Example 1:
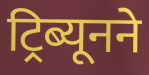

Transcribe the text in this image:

ट्रिब्यूनने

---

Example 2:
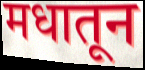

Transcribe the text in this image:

मधातून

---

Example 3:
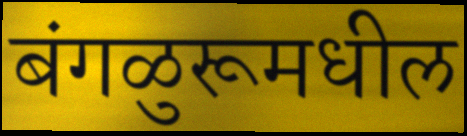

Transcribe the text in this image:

बंगळुरूमधील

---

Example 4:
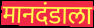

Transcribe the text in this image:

मानदंडाला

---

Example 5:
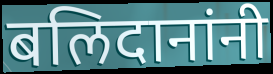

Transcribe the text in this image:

बलिदानांनी